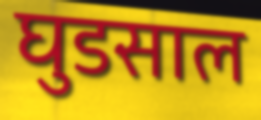
घुडसाल